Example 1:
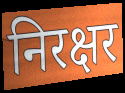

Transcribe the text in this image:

निरक्षर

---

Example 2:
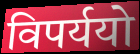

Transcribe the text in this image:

विपर्ययो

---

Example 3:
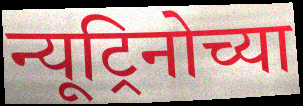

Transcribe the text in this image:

न्यूट्रिनोच्या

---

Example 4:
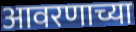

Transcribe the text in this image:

आवरणाच्या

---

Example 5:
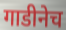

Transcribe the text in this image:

गाडीनेच